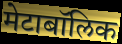
मेटाबॉलिक